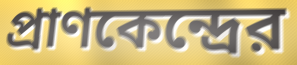
প্রাণকেন্দ্রের